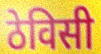
ठेविसी